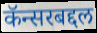
कॅन्सरबद्दल